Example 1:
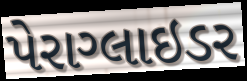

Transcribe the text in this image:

પેરાગ્લાઇડર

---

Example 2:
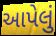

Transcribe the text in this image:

આપેલું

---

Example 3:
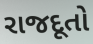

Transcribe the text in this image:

રાજદૂતો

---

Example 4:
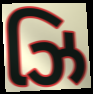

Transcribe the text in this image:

ઝિ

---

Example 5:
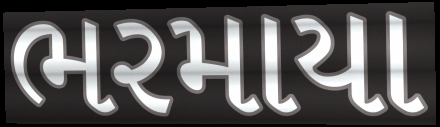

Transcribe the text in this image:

ભરમાયા